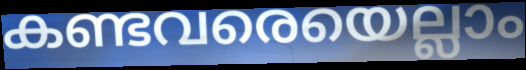
കണ്ടവരെയെല്ലാം